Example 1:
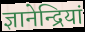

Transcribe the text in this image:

ज्ञानेन्द्रियां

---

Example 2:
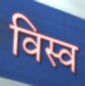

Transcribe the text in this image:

विस्व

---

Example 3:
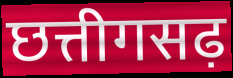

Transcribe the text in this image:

छत्तीगसढ़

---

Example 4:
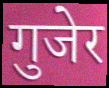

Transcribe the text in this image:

गुजेर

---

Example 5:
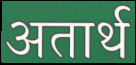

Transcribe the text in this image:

अतार्थ